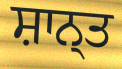
ਸ਼ਾਨ੍ਤ